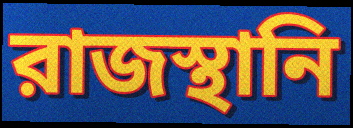
রাজস্থানি